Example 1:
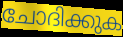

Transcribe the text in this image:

ചോദിക്കുക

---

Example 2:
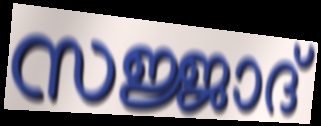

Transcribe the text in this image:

സജ്ജാദ്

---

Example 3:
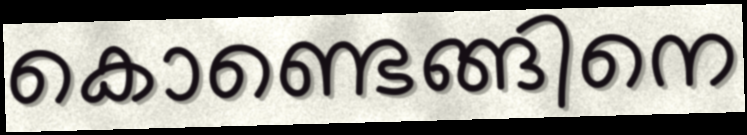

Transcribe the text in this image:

കൊണ്ടെങ്ങിനെ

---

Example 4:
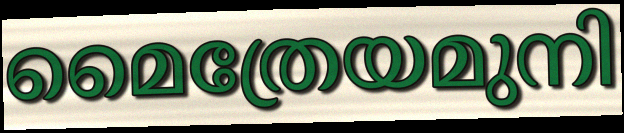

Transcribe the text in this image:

മൈത്രേയമുനി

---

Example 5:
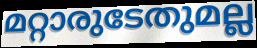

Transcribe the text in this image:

മറ്റാരുടേതുമല്ല